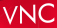
VNC